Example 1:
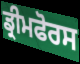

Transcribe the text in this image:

ਡ੍ਰੀਮਫੋਰਸ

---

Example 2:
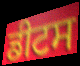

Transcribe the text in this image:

ਡੀਟਸ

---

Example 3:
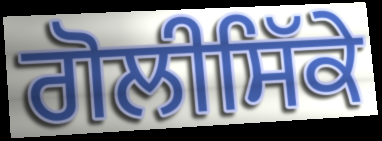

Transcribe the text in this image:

ਗੋਲੀਸਿੱਕੇ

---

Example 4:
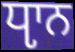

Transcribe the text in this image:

ਧੵਾਨ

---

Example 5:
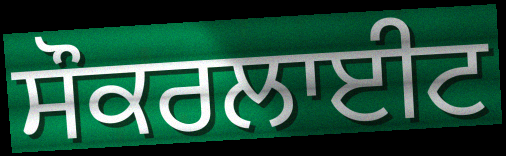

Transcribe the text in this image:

ਸੌਕਰਲਾਈਟ